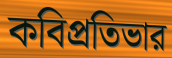
কবিপ্রতিভার